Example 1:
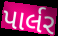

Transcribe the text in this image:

પાર્લર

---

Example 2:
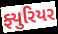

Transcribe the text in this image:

ફ્યુરિયર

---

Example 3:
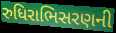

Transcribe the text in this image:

રુધિરાભિસરણની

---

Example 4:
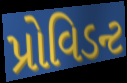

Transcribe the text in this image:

પ્રોવિડન્ટ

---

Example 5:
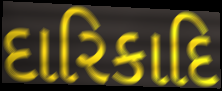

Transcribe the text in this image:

દારિકાદિ